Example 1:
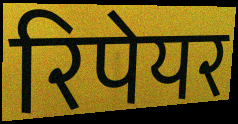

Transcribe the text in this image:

रिपेयर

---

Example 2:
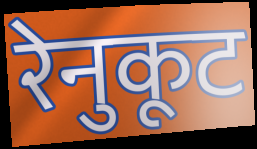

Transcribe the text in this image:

रेनुकूट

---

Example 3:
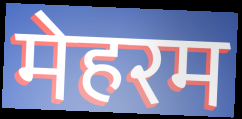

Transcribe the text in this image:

मेहरम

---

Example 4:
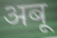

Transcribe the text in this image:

अबू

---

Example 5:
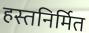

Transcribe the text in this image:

हस्तनिर्मित